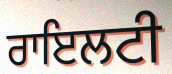
ਰਾਇਲਟੀ